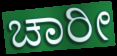
ಚಾರೀ